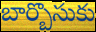
బార్బొసుకు